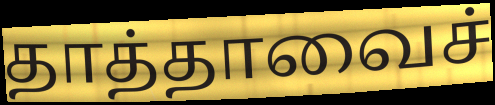
தாத்தாவைச்